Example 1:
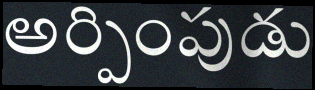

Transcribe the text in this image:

అర్పింపుడు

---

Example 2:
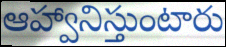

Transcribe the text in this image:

ఆహ్వానిస్తుంటారు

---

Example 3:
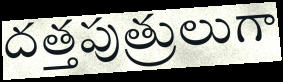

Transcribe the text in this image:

దత్తపుత్రులుగా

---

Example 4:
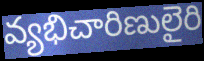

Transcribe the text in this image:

వ్యభిచారిణులైరి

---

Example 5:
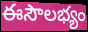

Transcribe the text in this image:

ఈసౌలభ్యం